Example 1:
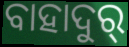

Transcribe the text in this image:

ବାହାଦୁର୍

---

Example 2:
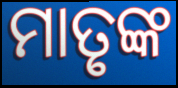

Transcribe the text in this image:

ମାତୃଙ୍କ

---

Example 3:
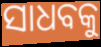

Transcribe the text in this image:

ସାଧବକୁ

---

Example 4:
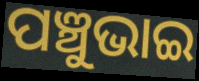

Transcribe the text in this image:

ପଞ୍ଚୁଭାଇ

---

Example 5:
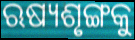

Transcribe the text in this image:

ଋଷ୍ୟଶୃଙ୍ଗକୁ